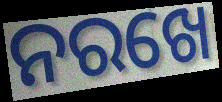
ନରଖେ